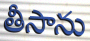
తీసాను